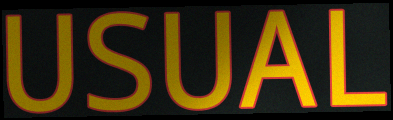
USUAL